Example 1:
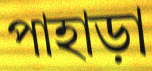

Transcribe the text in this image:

পাহাড়া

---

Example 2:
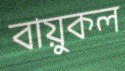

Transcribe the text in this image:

বায়ুকল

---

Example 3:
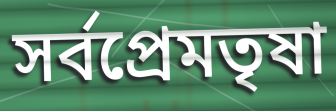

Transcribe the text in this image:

সর্বপ্রেমতৃষা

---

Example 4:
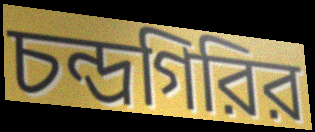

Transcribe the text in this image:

চন্দ্রগিরির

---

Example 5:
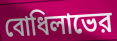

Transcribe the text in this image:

বোধিলাভের